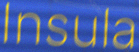
Insula